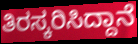
ತಿರಸ್ಕರಿಸಿದ್ದಾನೆ